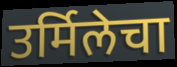
उर्मिलेचा